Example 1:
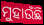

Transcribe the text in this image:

ମୁହାଉଁଛି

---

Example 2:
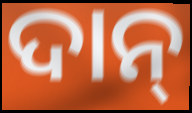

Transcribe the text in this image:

ଦାନ୍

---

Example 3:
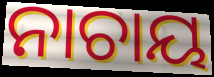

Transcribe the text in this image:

ନାଚାୟ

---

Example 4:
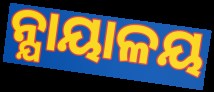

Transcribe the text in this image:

ନ୍ଯାୟାଳୟ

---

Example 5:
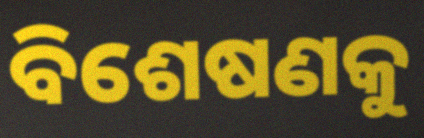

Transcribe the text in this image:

ବିଶେଷଣକୁ